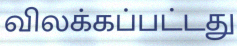
விலக்கப்பட்டது